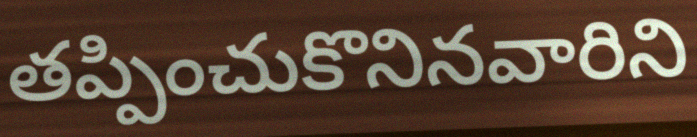
తప్పించుకొనినవారిని